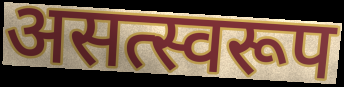
असत्स्वरूप